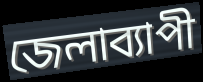
জেলাব্যাপী